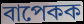
বাপেকক